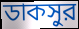
ডাকসুর